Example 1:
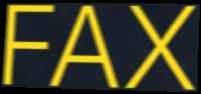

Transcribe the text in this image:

FAX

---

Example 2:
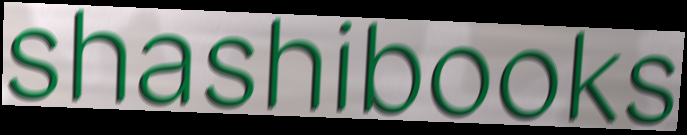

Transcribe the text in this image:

shashibooks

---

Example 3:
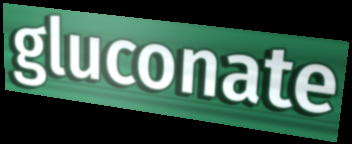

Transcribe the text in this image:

gluconate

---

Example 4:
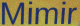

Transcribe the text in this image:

Mimir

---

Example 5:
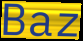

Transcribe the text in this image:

Baz